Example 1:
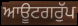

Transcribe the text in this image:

ਆਊਟਗਰੁੱਪ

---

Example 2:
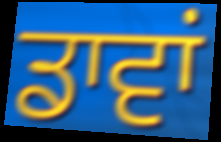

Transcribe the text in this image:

ਡਾਵਾਂ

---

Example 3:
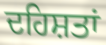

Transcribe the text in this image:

ਦਹਿਸ਼ਤਾਂ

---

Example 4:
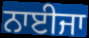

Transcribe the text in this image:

ਨਾਈਜਾ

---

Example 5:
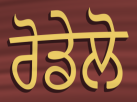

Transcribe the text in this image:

ਰੋਡੇਲੋ